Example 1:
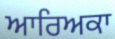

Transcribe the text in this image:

ਆਰਿਅਕਾ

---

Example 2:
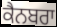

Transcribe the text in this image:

ਕੈਨਬਰਾ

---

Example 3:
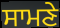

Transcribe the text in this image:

ਸਾਮਣੇ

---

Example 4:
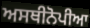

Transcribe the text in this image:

ਅਸਥੀਨੋਪੀਆ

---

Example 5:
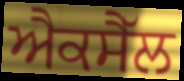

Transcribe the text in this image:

ਐਕਸੈੱਲ